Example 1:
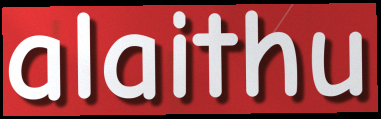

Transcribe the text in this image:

alaithu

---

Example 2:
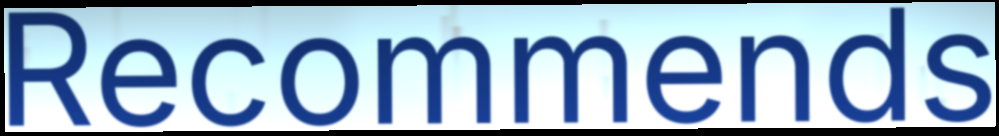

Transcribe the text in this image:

Recommends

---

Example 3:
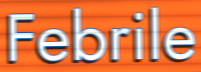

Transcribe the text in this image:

Febrile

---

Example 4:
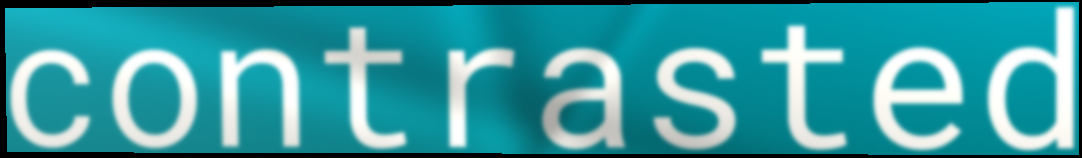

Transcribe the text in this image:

contrasted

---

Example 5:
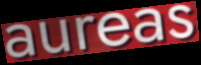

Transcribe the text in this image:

aureas